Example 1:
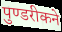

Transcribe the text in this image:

पुण्डरीकने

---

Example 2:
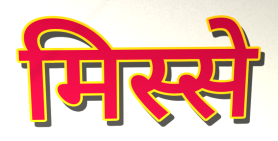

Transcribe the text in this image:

मिस्से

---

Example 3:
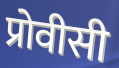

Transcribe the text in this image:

प्रोवीसी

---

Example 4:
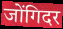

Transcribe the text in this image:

जोंगिदर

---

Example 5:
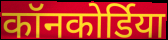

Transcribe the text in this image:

कॉनकोर्डिया